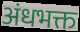
अंधभक्त